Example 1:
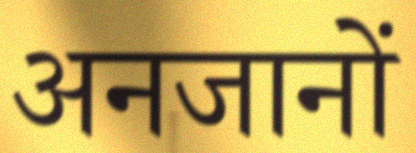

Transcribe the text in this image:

अनजानों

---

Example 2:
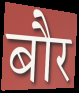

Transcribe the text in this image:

बौर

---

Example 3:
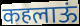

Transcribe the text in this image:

कहलाऊं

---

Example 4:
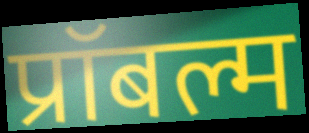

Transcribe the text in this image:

प्रॉबल्म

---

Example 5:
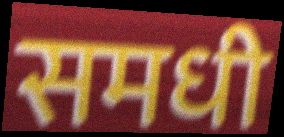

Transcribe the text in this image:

समधी